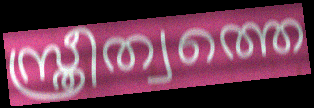
സ്ത്രീത്വത്തെ